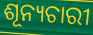
ଶୂନ୍ୟଚାରୀ